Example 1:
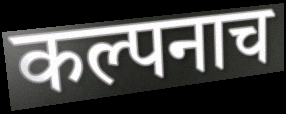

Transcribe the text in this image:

कल्पनाच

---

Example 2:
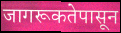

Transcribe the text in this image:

जागरूकतेपासून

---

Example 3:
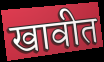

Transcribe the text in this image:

खावीत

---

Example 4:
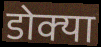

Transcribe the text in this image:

डोक्या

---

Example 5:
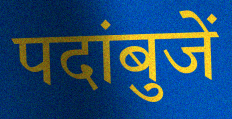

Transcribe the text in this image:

पदांबुजें